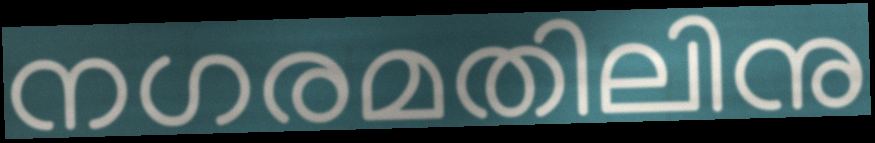
നഗരമതിലിനു